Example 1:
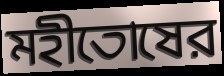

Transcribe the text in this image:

মহীতোষের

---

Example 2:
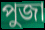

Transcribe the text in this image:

পুজা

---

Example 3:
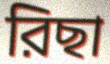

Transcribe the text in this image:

রিছা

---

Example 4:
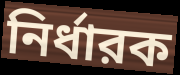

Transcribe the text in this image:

নির্ধারক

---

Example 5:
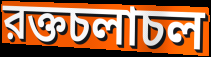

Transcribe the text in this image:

রক্তচলাচল